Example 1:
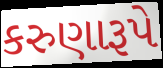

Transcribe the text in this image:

કરુણારૂપે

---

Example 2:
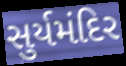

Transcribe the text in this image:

સુર્યમંદિર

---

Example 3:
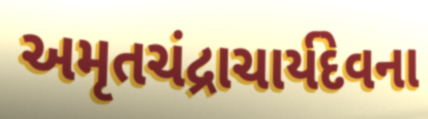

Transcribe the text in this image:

અમૃતચંદ્રાચાર્યદેવના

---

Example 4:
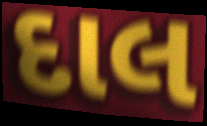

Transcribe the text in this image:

દાલ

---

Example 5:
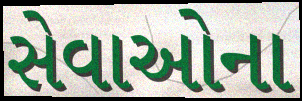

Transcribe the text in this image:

સેવાઓના